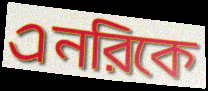
এনরিকে